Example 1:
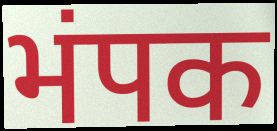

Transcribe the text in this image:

भंपक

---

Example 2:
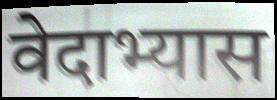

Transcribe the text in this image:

वेदाभ्यास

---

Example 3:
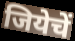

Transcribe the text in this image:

जियेचें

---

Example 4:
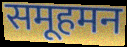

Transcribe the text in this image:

समूहमन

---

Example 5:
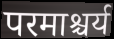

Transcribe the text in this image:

परमाश्चर्य